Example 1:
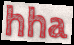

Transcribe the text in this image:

hha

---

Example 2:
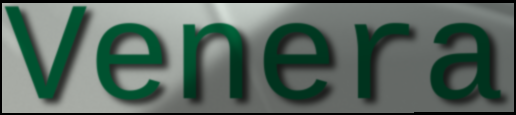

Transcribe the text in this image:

Venera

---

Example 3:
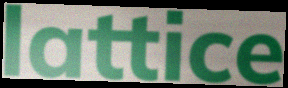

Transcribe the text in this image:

lattice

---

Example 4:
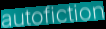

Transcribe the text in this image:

autofiction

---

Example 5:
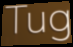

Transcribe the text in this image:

Tug